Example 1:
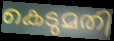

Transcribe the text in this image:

കെടുമതി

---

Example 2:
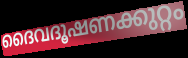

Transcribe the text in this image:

ദൈവദൂഷണക്കുറ്റം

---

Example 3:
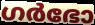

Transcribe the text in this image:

ഗർഭോ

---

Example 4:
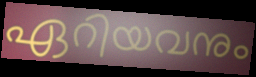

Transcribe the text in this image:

ഏറിയവനും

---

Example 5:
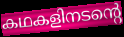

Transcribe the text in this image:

കഥകളിനടന്റെ